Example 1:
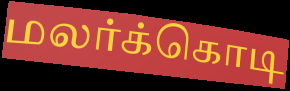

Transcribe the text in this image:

மலர்க்கொடி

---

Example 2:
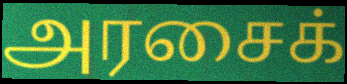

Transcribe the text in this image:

அரசைக்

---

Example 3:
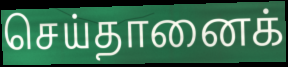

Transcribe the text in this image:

செய்தானைக்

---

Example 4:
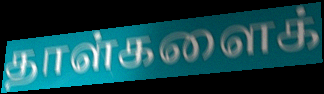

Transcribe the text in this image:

தாள்களைக்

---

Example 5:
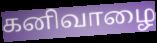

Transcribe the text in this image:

கனிவாழை